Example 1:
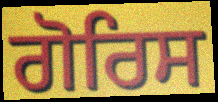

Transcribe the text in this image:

ਗੋਰਿਸ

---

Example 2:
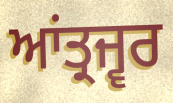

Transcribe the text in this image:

ਆਂਤ੍ਰਜ੍ਵਰ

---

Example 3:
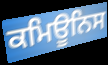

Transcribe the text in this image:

ਕਮਿਊਨਿਸ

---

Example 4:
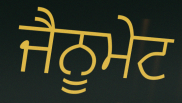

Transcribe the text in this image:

ਜੈਨੂਮੇਟ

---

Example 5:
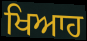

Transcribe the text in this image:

ਖਿਆਹ